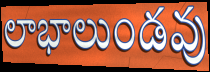
లాభాలుండవు